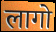
लागो